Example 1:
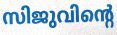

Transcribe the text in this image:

സിജുവിന്റെ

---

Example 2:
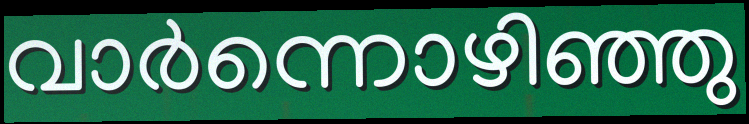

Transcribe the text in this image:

വാർന്നൊഴിഞ്ഞു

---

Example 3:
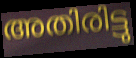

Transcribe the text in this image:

അതിരിട്ടു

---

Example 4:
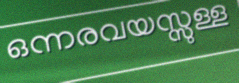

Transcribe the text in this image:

ഒന്നരവയസ്സുള്ള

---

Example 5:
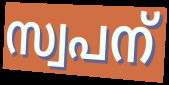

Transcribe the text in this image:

സ്വപന്